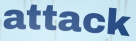
attack